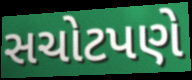
સચોટપણે